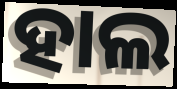
ହାଲ